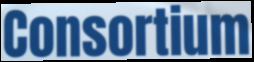
Consortium